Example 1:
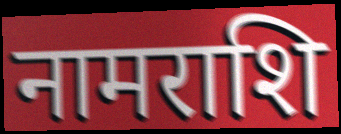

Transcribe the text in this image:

नामराशि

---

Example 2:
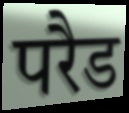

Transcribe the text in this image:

परैड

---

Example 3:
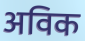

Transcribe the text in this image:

अविक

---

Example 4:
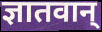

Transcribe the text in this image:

ज्ञातवान्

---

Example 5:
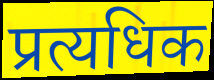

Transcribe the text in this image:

प्रत्यधिक